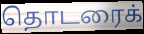
தொடரைக்